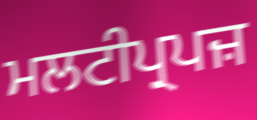
ਮਲਟੀਪ੍ਰਪਜ਼